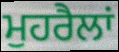
ਮੁਹਰੈਲਾਂ